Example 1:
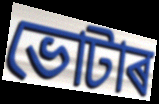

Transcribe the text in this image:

ভোটাৰ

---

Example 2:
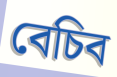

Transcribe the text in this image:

বেচিব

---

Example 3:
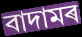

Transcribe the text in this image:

বাদামৰ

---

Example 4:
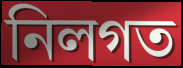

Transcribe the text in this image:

নিলগত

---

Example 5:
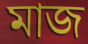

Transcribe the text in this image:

মাজ